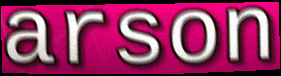
arson